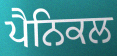
ਪੈਨਿਕਲ